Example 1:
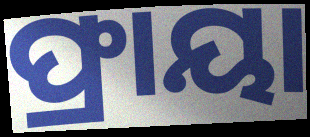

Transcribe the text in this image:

ଫ୍ରାୟା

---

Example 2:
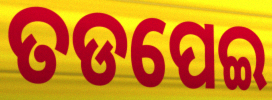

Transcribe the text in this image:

ତଡପେଇ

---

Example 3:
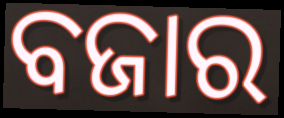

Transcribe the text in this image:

ବଜାର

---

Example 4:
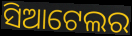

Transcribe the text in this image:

ସିଆଟେଲର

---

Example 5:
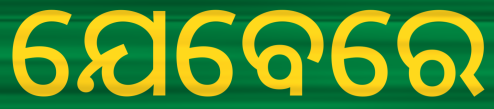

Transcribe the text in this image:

ଯେବେରେ